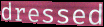
dressed